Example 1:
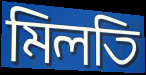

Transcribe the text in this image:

মিলতি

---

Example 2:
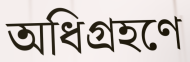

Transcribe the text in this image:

অধিগ্রহণে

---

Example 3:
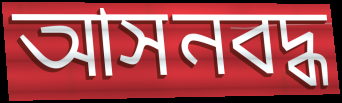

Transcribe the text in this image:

আসনবদ্ধ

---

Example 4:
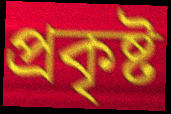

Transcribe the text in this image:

প্রকৃষ্ট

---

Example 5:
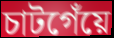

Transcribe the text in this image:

চাটগেঁয়ে